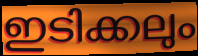
ഇടിക്കലും